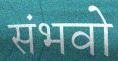
संभवो